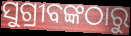
ସୁଗ୍ରୀବଙ୍କଠାରୁ